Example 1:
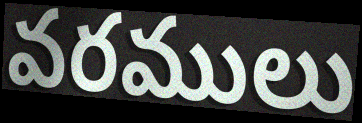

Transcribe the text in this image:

వరములు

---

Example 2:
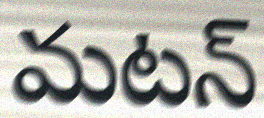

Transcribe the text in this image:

మటన్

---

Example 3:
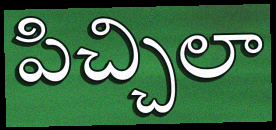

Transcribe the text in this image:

పిచ్చిలా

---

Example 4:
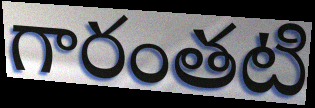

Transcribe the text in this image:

గారంతటి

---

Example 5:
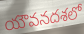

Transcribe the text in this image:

యౌవనదశలో